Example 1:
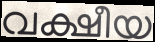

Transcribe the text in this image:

വക്ഷീയ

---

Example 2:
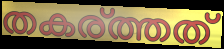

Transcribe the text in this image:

തകര്ത്തത്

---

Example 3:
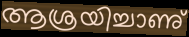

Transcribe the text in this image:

ആശ്രയിച്ചാണു്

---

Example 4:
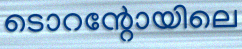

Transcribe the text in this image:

ടൊറന്റോയിലെ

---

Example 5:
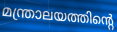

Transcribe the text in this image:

മന്ത്രാലയത്തിന്റെ